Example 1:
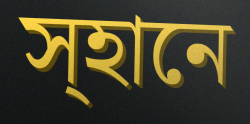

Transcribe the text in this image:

স্হানে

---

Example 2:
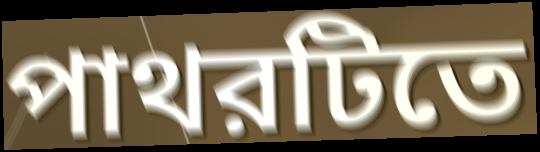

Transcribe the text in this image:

পাথরটিতে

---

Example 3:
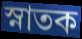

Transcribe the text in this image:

স্নাতক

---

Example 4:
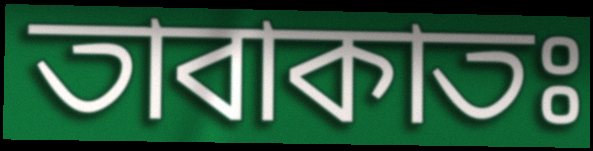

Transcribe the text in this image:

তাবাকাতঃ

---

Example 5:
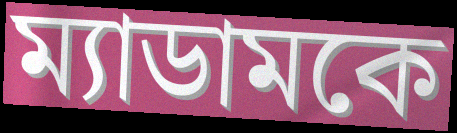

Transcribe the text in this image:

ম্যাডামকে